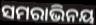
ସମରାଭିନୟ